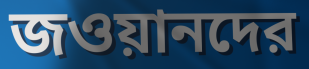
জওয়ানদের